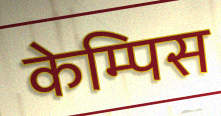
केम्पिस